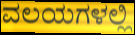
ವಲಯಗಳಲ್ಲಿ